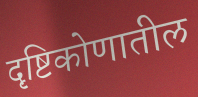
दृष्टिकोणातील